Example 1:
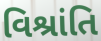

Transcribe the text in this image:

વિશ્રાંતિ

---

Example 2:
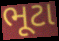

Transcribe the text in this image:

ભૂટા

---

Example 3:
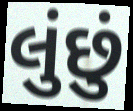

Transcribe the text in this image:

લુંછું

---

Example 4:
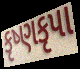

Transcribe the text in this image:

કૃષ્ણકૃપા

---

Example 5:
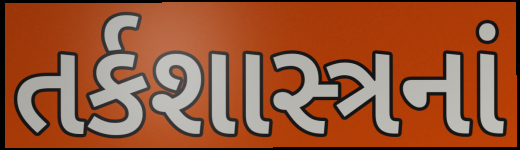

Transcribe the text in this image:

તર્કશાસ્ત્રનાં